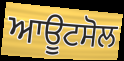
ਆਊਟਸੋਲ